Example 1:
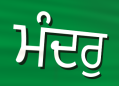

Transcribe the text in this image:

ਮੰਦਰੁ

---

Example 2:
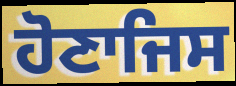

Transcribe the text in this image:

ਹੋਣਾਜਿਸ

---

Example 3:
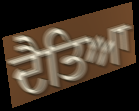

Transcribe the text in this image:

ਦੈਤਿਆ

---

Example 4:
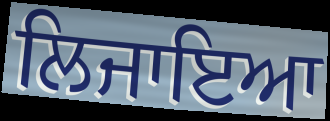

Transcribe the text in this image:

ਲਿਜਾਇਆ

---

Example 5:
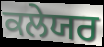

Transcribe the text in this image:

ਕਲੇਯਰ